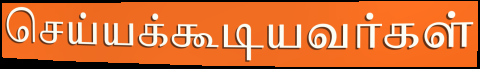
செய்யக்கூடியவர்கள்